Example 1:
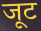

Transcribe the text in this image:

जूट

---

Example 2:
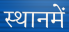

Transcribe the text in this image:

स्थानमें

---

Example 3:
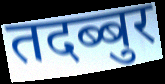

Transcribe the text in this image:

तदब्बुर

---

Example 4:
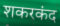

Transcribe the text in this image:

शकरकंद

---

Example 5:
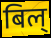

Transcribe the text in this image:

बिल्